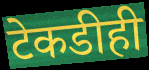
टेकडीही